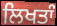
ਲਿਖਤਾੰ